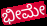
ಭೀಮೇ